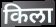
किला